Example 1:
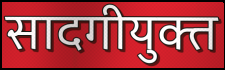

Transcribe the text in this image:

सादगीयुक्त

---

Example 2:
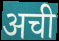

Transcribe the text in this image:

अची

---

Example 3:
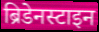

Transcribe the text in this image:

ब्रिडेनस्टाइन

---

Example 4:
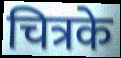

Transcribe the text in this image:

चित्रके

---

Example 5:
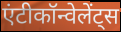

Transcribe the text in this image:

एंटीकॉन्वेलेंट्स